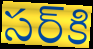
సర్‌కి